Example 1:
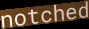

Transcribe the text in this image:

notched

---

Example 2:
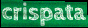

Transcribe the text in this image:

crispata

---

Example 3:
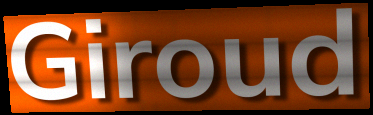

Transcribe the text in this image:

Giroud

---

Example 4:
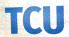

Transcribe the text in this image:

TCU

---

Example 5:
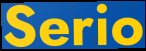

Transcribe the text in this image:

Serio